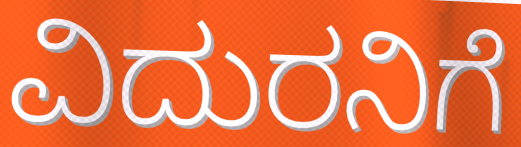
ವಿದುರನಿಗೆ